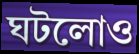
ঘটলোও